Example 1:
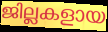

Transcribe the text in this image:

ജില്ലകളായ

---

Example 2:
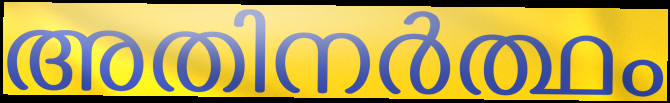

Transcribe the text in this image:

അതിനർത്ഥം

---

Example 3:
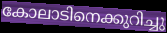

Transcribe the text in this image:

കോലാടിനെക്കുറിച്ചു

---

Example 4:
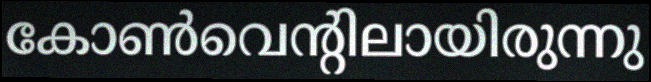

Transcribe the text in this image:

കോൺവെന്റിലായിരുന്നു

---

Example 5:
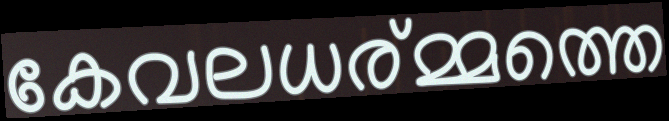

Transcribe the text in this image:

കേവലധര്മ്മത്തെ